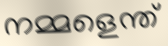
നമ്മളെന്ത്